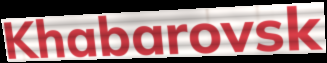
Khabarovsk